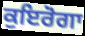
ਕੁਇਰੋਗਾ